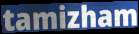
tamizham